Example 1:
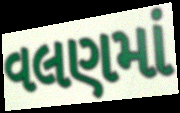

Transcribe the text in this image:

વલણમાં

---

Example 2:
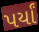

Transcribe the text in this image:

પર્યાં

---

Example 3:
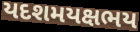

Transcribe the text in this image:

યદશમયક્ષભય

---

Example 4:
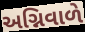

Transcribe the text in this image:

અગ્નિવાળે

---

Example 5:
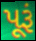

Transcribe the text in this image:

પૂરૂં